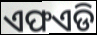
ଏଫଏଡି